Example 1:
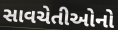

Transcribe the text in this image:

સાવચેતીઓનો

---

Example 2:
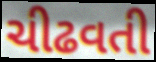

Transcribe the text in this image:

ચીઢવતી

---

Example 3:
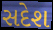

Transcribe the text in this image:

સદેશ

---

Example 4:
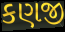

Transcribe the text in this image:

કણજી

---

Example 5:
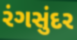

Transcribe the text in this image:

રંગસુંદર